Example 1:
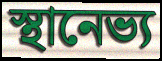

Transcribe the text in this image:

স্থানেভ্য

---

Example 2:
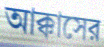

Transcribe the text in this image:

আক্কাসের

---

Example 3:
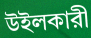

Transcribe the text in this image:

উইলকারী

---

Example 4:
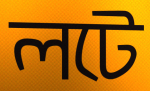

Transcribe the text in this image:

লটে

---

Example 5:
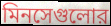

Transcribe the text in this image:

মিনসেগুলোর